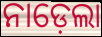
ନାଡ଼େଲା